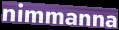
nimmanna